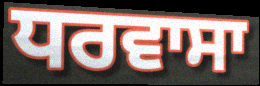
ਧਰਵਾਸਾ